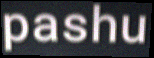
pashu